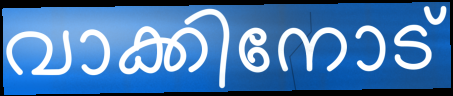
വാക്കിനോട്